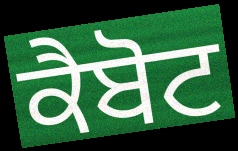
ਕੈਬੋਟ